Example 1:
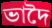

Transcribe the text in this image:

ভাদৈ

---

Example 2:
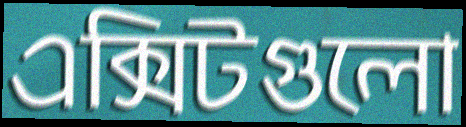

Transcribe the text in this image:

এক্সিটগুলো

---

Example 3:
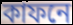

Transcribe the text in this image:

কাফনে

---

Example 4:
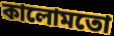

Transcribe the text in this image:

কালোমতো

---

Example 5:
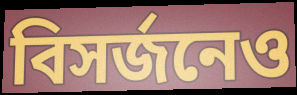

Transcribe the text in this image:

বিসর্জনেও